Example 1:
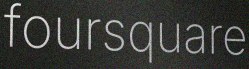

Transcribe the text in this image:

foursquare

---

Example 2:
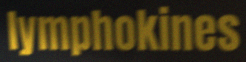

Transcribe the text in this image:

lymphokines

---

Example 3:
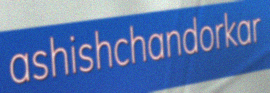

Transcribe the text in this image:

ashishchandorkar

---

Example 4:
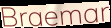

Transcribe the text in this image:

Braemar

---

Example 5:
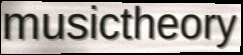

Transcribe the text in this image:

musictheory